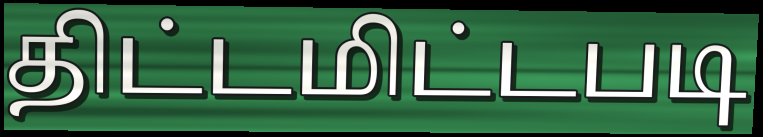
திட்டமிட்டபடி